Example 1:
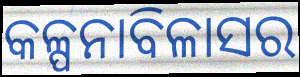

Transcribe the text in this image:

କଳ୍ପନାବିଳାସର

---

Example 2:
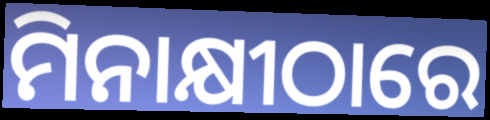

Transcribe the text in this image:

ମିନାକ୍ଷୀଠାରେ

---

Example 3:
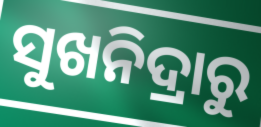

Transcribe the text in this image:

ସୁଖନିଦ୍ରାରୁ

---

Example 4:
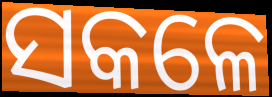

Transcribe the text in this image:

ସକଳେ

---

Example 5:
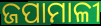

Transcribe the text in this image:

ଜପାମାଳୀ